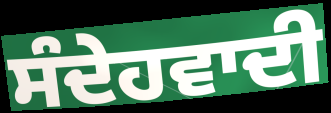
ਸੰਦੇਹਵਾਦੀ